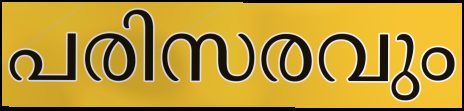
പരിസരവും